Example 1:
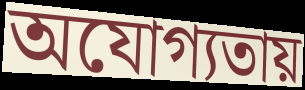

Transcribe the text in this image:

অযোগ্যতায়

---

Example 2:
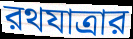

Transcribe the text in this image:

রথযাত্রার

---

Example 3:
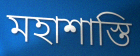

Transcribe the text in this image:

মহাশাস্তি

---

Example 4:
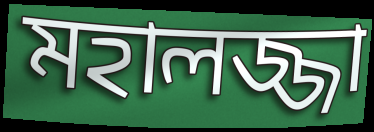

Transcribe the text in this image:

মহালজ্জা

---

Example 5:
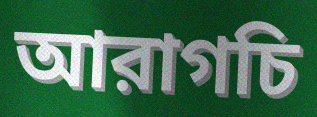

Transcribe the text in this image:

আরাগচি